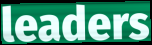
leaders